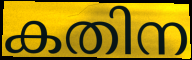
കതിന